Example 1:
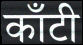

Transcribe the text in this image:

काँटी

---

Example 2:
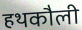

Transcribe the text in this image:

हथकौली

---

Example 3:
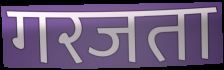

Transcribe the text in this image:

गरजता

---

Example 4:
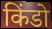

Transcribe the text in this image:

किंडो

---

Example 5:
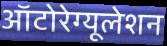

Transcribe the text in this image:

ऑटोरेग्यूलेशन